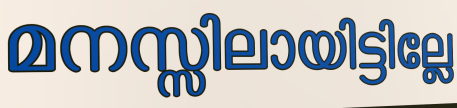
മനസ്സിലായിട്ടില്ലേ